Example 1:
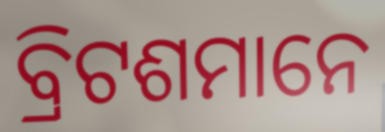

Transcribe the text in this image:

ବ୍ରିଟଶମାନେ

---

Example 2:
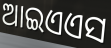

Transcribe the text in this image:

ଆଇଏଏସ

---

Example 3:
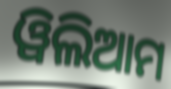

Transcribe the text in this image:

ୱିଲିଆମ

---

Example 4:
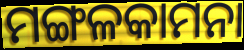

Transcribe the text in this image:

ମଙ୍ଗଳକାମନା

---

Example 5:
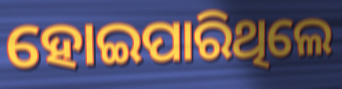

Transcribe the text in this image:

ହୋଇପାରିଥିଲେ